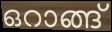
ഒറാങ്ങ്